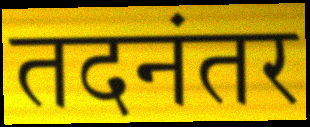
तदनंतर